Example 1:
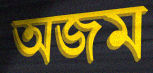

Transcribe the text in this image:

অজম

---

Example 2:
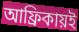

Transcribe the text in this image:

আফ্রিকায়ই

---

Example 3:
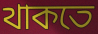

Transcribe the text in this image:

থাকতে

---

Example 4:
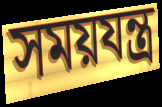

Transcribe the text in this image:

সময়যন্ত্র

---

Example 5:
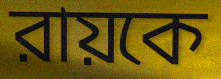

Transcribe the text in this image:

রায়কে